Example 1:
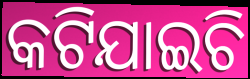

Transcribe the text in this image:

କଟିଯାଇଚି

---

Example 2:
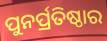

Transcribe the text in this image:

ପୁନର୍ପ୍ରତିଷ୍ଠାର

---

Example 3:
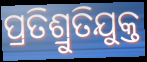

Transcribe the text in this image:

ପ୍ରତିଶ୍ରୁତିଯୁକ୍ତ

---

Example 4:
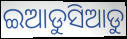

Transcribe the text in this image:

ଇଆଡୁସିଆଡୁ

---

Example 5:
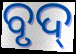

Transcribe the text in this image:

ବୃଦ୍